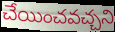
చేయించవచ్చని